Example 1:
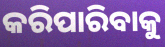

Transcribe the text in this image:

କରିପାରିବାକୁ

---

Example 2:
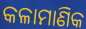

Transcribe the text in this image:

କଳାମାଣିକ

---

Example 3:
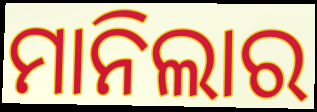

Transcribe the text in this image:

ମାନିଲାର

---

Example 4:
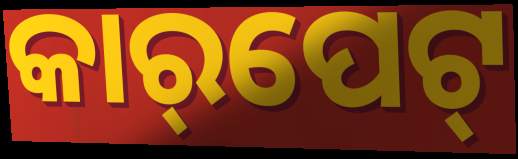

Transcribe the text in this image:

କାର୍‌ପେଟ୍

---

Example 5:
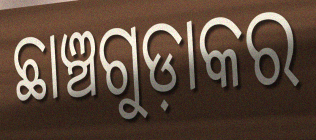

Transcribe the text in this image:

ଛାଞ୍ଚଗୁଡ଼ାକର